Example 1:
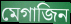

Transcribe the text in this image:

মেগাজিন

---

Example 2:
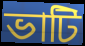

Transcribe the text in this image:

ভাটি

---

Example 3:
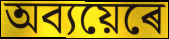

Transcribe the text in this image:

অব্যয়েৰে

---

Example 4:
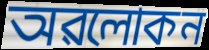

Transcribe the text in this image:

অৱলোকন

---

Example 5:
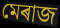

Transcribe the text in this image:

মেৰাজ